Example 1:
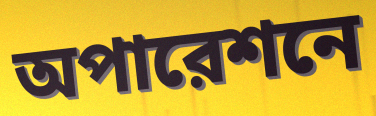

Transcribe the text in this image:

অপারেশনে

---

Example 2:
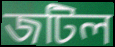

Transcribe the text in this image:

জটিল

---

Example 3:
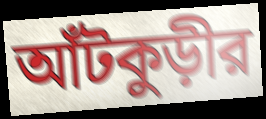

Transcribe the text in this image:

আঁটকুড়ীর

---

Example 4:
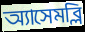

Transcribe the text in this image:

অ্যাসেমব্লি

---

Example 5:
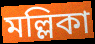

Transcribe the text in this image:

মল্লিকা